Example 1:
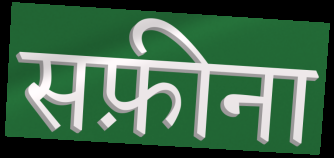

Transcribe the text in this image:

सफ़ीना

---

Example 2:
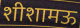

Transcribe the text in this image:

शीशामऊ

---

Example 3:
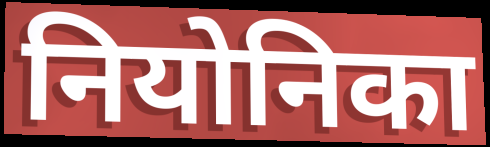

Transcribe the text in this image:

नियोनिका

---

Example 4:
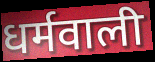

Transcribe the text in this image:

धर्मवाली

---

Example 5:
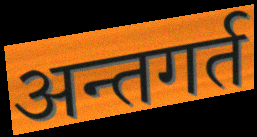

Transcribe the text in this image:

अन्तगर्त